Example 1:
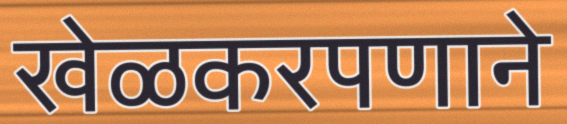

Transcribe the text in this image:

खेळकरपणाने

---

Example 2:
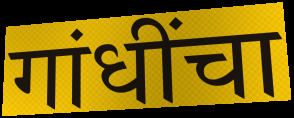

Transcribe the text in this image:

गांधींचा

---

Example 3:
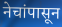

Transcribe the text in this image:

नेचांपासून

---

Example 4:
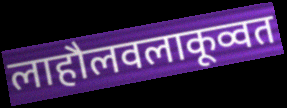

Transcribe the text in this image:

लाहौलवलाकूव्वत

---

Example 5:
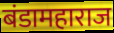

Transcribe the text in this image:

बंडामहाराज